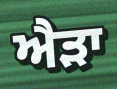
ਐੜਾ